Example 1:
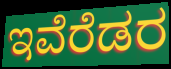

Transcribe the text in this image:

ಇವೆರೆಡರ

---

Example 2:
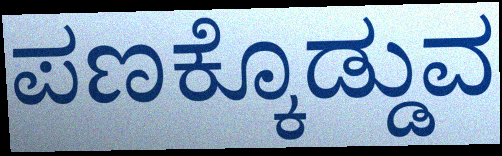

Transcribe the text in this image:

ಪಣಕ್ಕೊಡ್ಡುವ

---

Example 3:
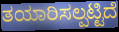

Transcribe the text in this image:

ತಯಾರಿಸಲ್ಪಟ್ಟಿದೆ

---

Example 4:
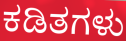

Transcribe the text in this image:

ಕಡಿತಗಳು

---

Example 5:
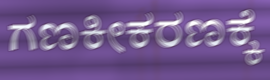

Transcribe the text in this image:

ಗಣಕೀಕರಣಕ್ಕೆ